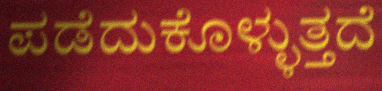
ಪಡೆದುಕೊಳ್ಳುತ್ತದೆ